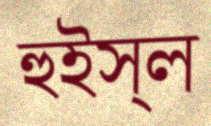
হুইস্‌ল